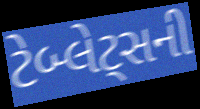
ટેબ્લેટ્સની